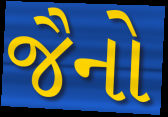
જૈનો